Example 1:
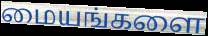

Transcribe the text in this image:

மையங்களை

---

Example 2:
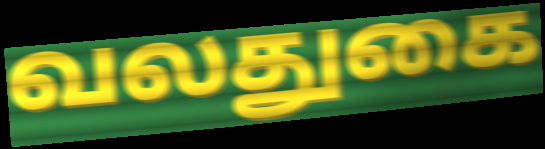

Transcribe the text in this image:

வலதுகை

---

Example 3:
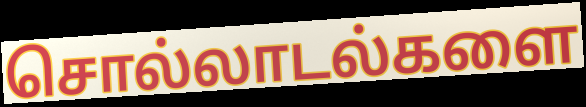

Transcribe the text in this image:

சொல்லாடல்களை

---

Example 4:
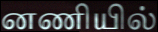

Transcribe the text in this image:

னணியில்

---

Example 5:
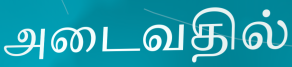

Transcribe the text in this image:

அடைவதில்